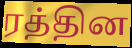
ரத்தின